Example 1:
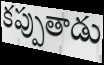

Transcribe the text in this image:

కప్పుతాడు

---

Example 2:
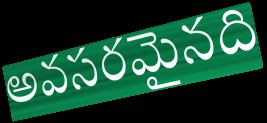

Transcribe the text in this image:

అవసరమైనది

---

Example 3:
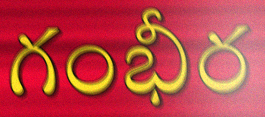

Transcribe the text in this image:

గంభీర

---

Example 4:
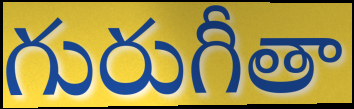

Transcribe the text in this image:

గురుగీతా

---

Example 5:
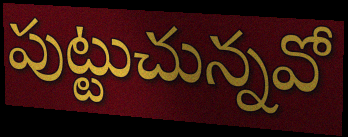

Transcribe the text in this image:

పుట్టుచున్నవో